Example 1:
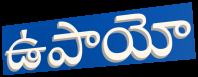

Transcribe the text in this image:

ఉపాయో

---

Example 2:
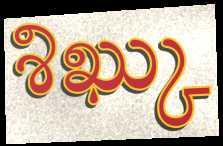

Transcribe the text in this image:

శిఖ్కు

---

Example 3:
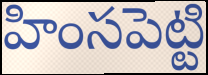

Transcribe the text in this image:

హింసపెట్టి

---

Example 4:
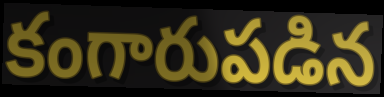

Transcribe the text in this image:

కంగారుపడిన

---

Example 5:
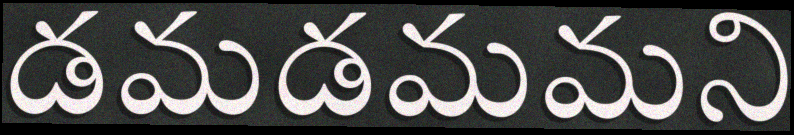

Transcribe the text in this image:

డమడమమని